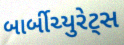
બાર્બીચ્યુરેટ્સ